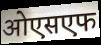
ओएसएफ